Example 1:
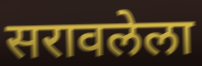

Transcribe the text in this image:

सरावलेला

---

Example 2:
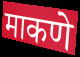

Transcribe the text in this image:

माकणे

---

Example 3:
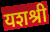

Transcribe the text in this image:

यशश्री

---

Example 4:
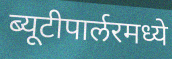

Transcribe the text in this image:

ब्यूटीपार्लरमध्ये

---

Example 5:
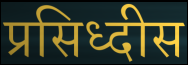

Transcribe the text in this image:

प्रसिध्दीस